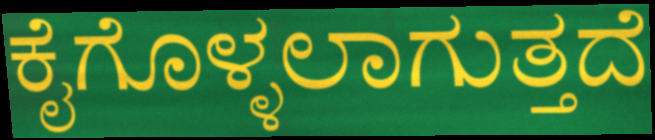
ಕೈಗೊಳ್ಳಲಾಗುತ್ತದೆ